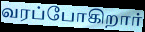
வரப்போகிறார்